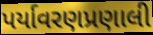
પર્યાવરણપ્રણાલી